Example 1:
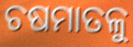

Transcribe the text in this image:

ଚଷମାତଳୁ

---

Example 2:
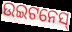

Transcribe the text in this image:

ଉଇଟନେସ୍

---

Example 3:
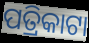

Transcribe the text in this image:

ପତ୍ରିକାଟା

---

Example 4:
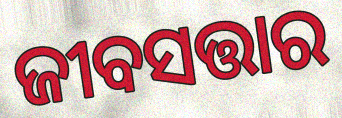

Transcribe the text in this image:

ଜୀବସତ୍ତାର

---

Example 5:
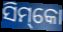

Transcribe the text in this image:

ସିମ୍‌କୋ